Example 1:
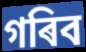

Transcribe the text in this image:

গৰিব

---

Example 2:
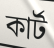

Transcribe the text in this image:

কাৰ্ট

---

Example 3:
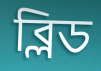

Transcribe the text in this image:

ব্লিড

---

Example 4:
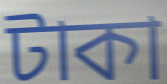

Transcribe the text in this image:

টাকা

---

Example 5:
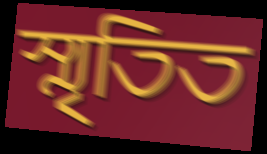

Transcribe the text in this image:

স্মৃতিত